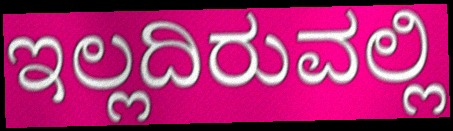
ಇಲ್ಲದಿರುವಲ್ಲಿ